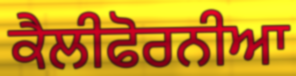
ਕੈਲੀਫੋਰਨੀਆ